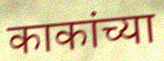
काकांच्या